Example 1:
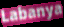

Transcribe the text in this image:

Labanya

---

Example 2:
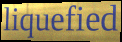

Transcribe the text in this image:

liquefied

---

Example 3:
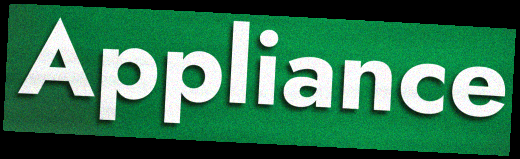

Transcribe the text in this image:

Appliance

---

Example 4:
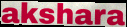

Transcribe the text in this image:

akshara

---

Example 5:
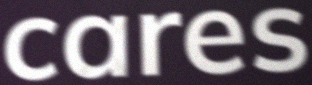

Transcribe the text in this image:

cares